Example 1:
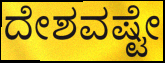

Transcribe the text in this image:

ದೇಶವಷ್ಟೇ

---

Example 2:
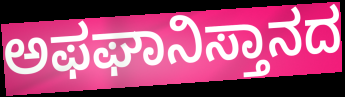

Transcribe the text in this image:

ಅಫಘಾನಿಸ್ತಾನದ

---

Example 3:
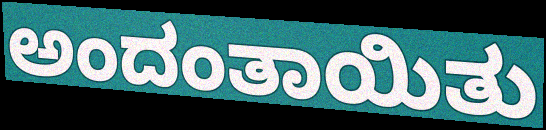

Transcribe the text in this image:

ಅಂದಂತಾಯಿತು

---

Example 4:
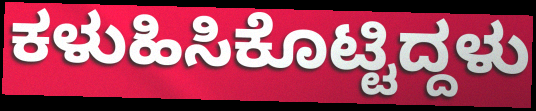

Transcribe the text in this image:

ಕಳುಹಿಸಿಕೊಟ್ಟಿದ್ದಳು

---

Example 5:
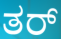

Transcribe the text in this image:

ತರ್